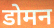
डोमन